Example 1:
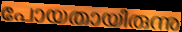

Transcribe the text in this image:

പോയതായിരുന്നു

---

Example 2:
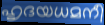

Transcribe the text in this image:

ഹൃദയധമനീ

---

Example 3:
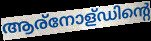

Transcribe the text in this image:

ആര്നോള്ഡിന്റെ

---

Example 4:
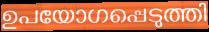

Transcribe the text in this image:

ഉപയോഗപ്പെടുത്തി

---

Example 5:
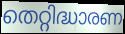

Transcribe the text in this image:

തെറ്റിദ്ധാരണ